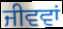
ਜੀਵਵਾਂ